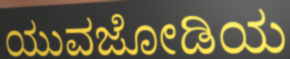
ಯುವಜೋಡಿಯ